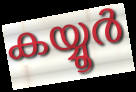
കയ്യൂർ